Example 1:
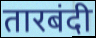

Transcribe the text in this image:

तारबंदी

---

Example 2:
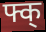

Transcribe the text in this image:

फ्क्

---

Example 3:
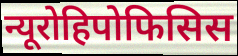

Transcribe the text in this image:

न्यूरोहिपोफिसिस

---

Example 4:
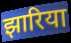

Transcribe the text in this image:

झारिया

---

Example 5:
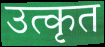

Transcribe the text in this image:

उत्कृत